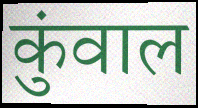
कुंवाल